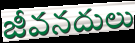
జీవనదులు